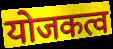
योजकत्व